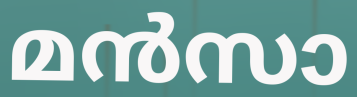
മൻസാ